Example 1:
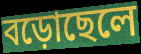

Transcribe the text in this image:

বড়োছেলে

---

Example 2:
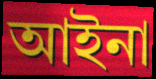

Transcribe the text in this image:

আইনা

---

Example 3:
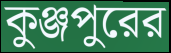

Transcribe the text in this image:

কুঞ্জপুরের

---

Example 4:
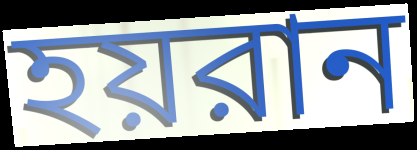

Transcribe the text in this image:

হয়রান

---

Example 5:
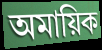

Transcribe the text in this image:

অমায়িক